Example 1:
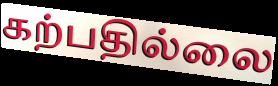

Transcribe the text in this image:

கற்பதில்லை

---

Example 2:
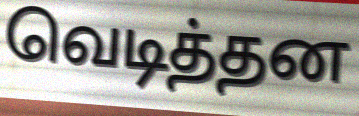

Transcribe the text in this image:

வெடித்தன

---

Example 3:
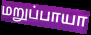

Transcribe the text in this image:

மறுப்பாயா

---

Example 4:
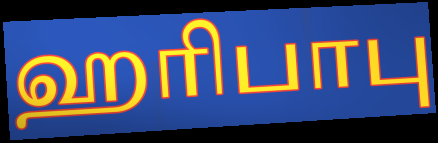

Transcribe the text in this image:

ஹரிபாபு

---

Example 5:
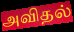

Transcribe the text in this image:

அவிதல்